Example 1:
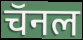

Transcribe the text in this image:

चॅनल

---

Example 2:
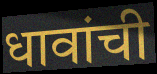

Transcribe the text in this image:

धावांची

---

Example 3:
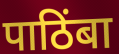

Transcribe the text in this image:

पाठिंबा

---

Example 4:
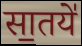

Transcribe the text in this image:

सा॒तये॑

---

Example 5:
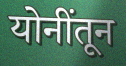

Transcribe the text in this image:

योनींतून